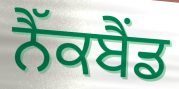
ਨੈੱਕਬੈਂਡ